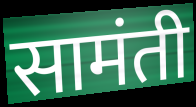
सामंती